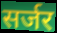
सर्जर